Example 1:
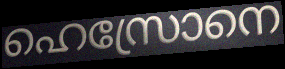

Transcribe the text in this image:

ഹെസ്രോനെ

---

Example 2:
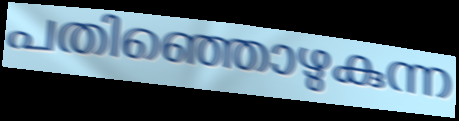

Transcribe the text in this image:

പതിഞ്ഞൊഴുകുന്ന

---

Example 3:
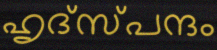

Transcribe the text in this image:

ഹൃദ്സ്പന്ദം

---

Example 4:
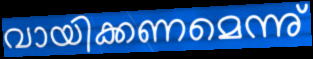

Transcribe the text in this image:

വായിക്കണമെന്നു്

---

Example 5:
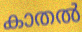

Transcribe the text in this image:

കാതൽ